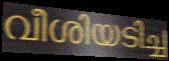
വീശിയടിച്ച